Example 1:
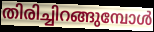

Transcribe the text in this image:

തിരിച്ചിറങ്ങുമ്പോൾ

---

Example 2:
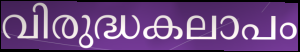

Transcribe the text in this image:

വിരുദ്ധകലാപം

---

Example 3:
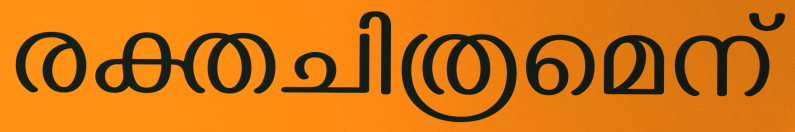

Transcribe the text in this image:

രക്തചിത്രമെന്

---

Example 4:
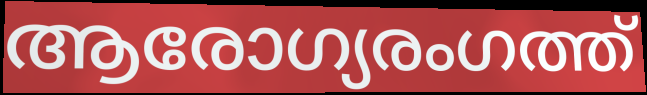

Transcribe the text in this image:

ആരോഗ്യരംഗത്ത്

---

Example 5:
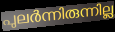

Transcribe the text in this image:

പുലർന്നിരുന്നില്ല